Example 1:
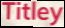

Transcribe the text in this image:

Titley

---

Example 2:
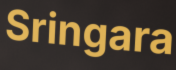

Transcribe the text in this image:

Sringara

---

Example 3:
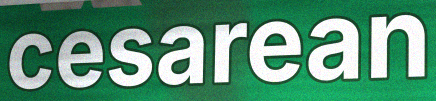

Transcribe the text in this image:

cesarean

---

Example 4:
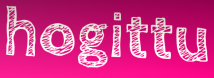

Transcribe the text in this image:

hogittu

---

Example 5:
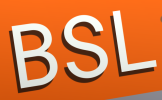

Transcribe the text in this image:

BSL